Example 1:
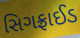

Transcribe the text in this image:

સિગફ્રાઈડ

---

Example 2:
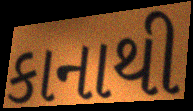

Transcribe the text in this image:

કાનાથી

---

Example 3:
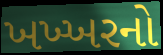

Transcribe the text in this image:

ખખ્ખરનો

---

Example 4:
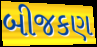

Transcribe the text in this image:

બીજકણ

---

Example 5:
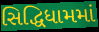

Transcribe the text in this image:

સિદ્ધિધામમાં